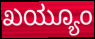
ಖಯ್ಯೂಂ